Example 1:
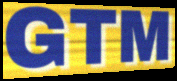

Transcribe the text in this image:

GTM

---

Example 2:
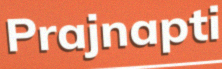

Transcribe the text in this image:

Prajnapti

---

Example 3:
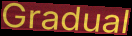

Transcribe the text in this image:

Gradual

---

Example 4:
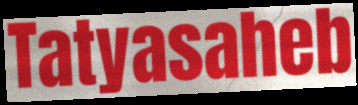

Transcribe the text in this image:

Tatyasaheb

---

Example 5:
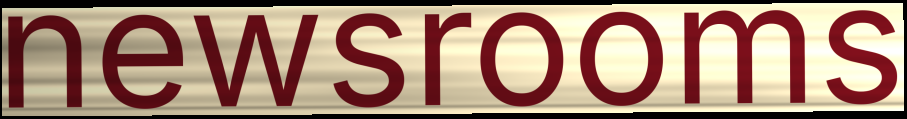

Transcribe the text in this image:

newsrooms